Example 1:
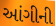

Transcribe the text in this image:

આંગીની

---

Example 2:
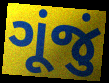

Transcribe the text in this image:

ગૂંજું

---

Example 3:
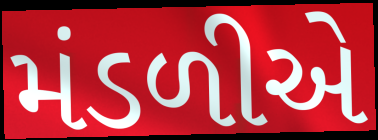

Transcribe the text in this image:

મંડળીએ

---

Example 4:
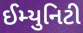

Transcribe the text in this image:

ઈમ્યુનિટી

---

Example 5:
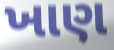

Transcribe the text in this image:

ખાણ